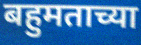
बहुमताच्या